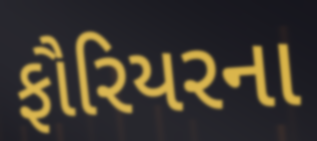
ફૌરિયરના